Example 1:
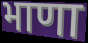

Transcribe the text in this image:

भाणा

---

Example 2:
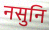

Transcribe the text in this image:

नसुनि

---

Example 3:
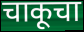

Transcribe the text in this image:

चाकूचा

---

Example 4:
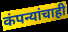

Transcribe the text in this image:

कंपन्यांचाही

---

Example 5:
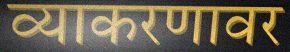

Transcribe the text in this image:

व्याकरणावर